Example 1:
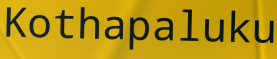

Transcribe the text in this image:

Kothapaluku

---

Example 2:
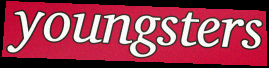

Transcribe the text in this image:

youngsters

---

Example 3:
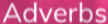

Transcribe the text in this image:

Adverbs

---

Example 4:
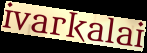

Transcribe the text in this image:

ivarkalai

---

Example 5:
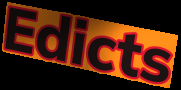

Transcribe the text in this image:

Edicts